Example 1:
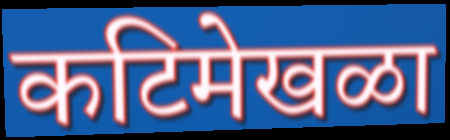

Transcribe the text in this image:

कटिमेखळा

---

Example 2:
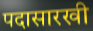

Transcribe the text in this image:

पदासारखी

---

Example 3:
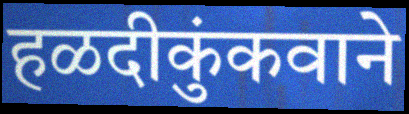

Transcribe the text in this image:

हळदीकुंकवाने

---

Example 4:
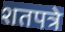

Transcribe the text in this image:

शतपत्रे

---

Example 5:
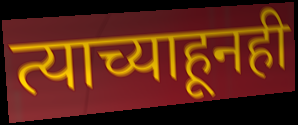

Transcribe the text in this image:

त्याच्याहूनही